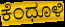
ಕೆಂಧೂಳಿ